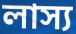
লাস্য